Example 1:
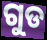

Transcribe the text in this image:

ଗୁଡ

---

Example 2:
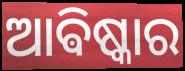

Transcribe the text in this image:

ଆଵିଷ୍କାର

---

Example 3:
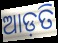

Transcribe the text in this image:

ଆଡ଼ତି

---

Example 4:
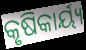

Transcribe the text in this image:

କୃଷିକାର୍ୟ୍ୟ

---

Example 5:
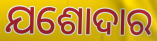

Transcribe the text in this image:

ଯଶୋଦାର